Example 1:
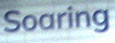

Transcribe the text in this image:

Soaring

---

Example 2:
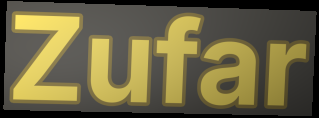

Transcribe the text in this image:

Zufar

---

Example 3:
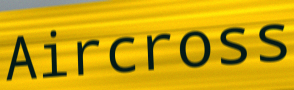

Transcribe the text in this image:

Aircross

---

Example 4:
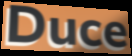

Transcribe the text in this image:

Duce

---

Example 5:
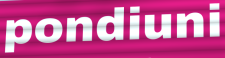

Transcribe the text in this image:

pondiuni